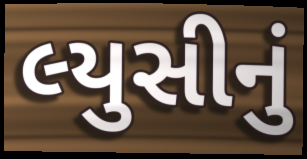
લ્યુસીનું